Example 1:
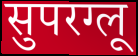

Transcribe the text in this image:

सुपरग्लू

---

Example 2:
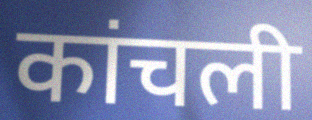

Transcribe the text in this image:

कांचली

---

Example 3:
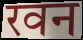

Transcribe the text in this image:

रवन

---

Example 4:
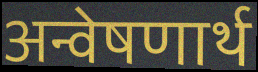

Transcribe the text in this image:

अन्वेषणार्थ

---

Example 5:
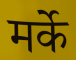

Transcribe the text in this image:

मर्के